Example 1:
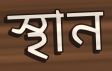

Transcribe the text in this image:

স্থান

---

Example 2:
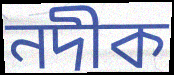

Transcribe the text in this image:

নদীক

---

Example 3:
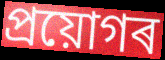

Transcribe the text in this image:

প্ৰয়োগৰ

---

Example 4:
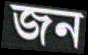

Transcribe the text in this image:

জন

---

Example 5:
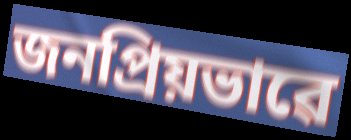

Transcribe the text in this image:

জনপ্ৰিয়ভাৱে